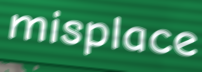
misplace